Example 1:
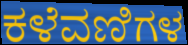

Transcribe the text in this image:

ಕಳೆವಣಿಗಳ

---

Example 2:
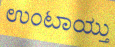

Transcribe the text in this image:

ಉಂಟಾಯ್ತು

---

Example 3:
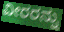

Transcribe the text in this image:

ವೀರರನ್ನು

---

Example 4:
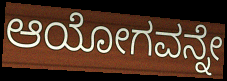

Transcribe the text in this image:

ಆಯೋಗವನ್ನೇ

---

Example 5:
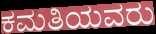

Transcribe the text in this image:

ಕಮತಿಯವರು